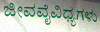
ಜೀವವೈವಿಧ್ಯಗಳು